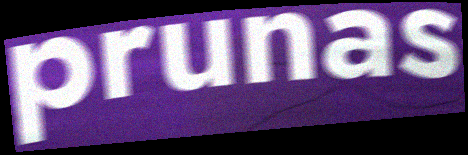
prunas